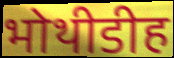
भोथीडीह